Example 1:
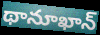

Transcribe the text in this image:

థానూఖాన్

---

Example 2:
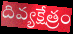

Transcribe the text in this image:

దివ్యక్షేత్రం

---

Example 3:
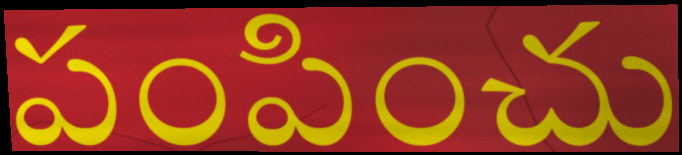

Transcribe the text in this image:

పంపించు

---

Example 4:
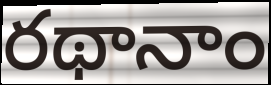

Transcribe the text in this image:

రథానాం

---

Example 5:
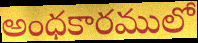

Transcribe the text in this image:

అంధకారములో